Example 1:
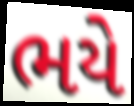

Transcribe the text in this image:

ભયે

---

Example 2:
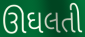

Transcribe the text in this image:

ઊઘલતી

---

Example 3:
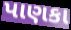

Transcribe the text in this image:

પાણકા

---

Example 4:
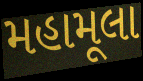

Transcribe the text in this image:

મહામૂલા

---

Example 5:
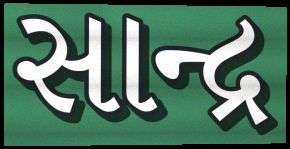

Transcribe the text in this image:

સાન્દ્ર